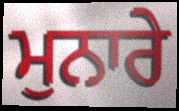
ਮੁਨਾਰੇ